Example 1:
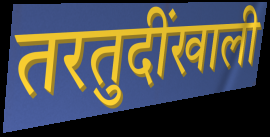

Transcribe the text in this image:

तरतुदींखाली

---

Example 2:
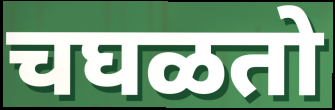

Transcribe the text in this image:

चघळतो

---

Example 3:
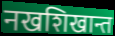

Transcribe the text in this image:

नखशिखान्त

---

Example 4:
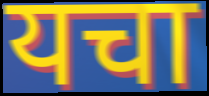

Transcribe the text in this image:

यचा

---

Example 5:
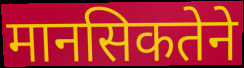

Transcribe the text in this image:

मानसिकतेने